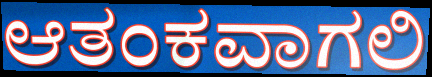
ಆತಂಕವಾಗಲಿ